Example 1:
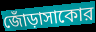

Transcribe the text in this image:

জোঁড়াসাকোর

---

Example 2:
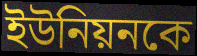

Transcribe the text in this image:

ইউনিয়নকে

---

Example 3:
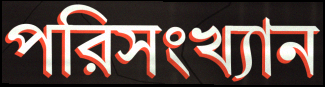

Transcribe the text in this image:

পরিসংখ্য়ান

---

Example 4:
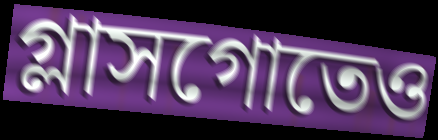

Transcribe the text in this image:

গ্লাসগোতেও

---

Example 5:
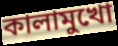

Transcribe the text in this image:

কালামুখো